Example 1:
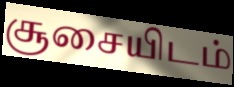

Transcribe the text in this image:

சூசையிடம்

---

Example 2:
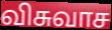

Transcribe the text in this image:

விசுவாச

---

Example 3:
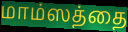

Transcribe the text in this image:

மாம்ஸத்தை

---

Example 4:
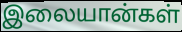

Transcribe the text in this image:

இலையான்கள்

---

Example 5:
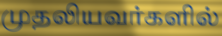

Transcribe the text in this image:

முதலியவர்களில்